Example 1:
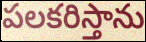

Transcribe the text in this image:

పలకరిస్తాను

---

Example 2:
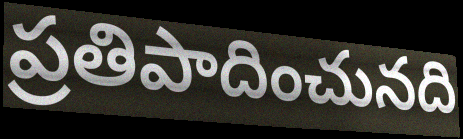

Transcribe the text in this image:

ప్రతిపాదించునది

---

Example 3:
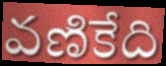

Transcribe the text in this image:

వణికేది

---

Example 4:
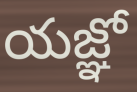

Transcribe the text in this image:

యజ్ఞో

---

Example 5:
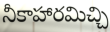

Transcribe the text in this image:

నీకాహారమిచ్చి